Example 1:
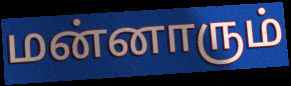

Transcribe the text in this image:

மன்னாரும்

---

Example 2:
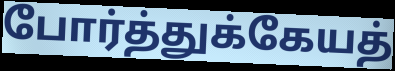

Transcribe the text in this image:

போர்த்துக்கேயத்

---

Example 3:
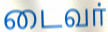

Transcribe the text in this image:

டைவர்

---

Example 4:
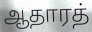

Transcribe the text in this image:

ஆதாரத்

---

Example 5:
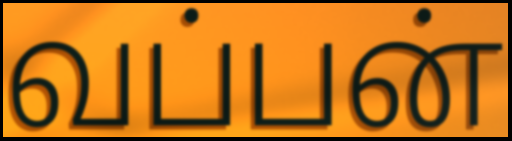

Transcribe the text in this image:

வப்பன்